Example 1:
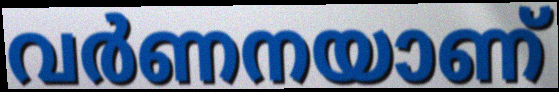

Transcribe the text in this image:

വർണനയാണ്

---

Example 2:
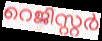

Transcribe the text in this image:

റെജിസ്റ്റർ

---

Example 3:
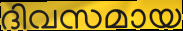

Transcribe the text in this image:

ദിവസമായ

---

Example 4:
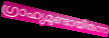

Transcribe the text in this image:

ഗ്രാഹ്യമുണ്ടായിരുന്ന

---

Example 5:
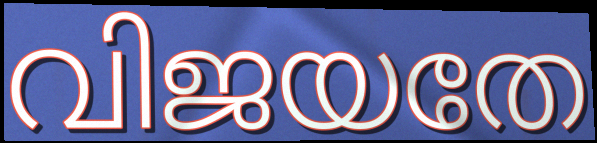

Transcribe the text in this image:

വിജയതേ